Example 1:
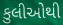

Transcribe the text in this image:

કુલીઓથી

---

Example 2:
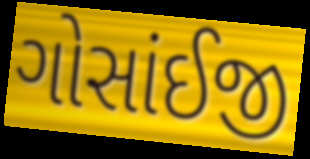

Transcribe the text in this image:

ગોસાંઈજી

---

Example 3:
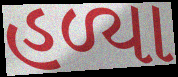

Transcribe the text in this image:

હળ્યા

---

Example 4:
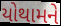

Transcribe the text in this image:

યોથામને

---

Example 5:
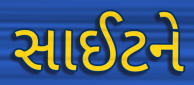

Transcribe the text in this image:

સાઈટને